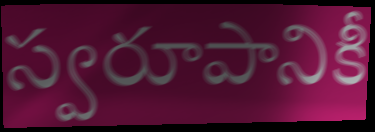
స్వరూపానికీ